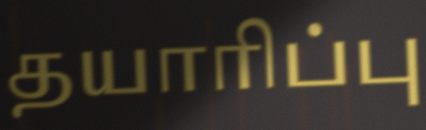
தயாரிப்பு